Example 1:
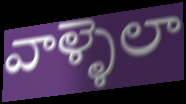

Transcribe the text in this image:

వాళ్ళెలా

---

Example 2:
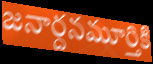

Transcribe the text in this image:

జనార్దనమూర్తికి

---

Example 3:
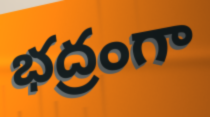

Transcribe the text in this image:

భద్రంగా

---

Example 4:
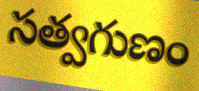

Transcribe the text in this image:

సత్వగుణం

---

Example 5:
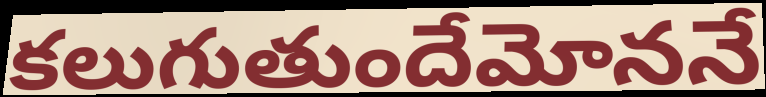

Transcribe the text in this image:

కలుగుతుందేమోననే